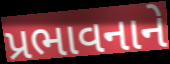
પ્રભાવનાને